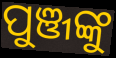
ପୁଞ୍ଜଙ୍କୁ